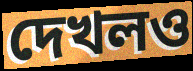
দেখলও